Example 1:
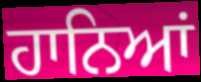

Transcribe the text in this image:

ਹਾਨਿਆਂ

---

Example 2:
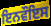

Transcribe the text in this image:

ਇਨਵੌਇਸ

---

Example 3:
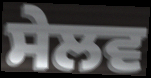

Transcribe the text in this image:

ਸੇਲਵ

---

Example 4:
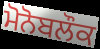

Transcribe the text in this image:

ਮੋਨੋਬਲੌਕ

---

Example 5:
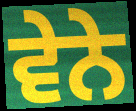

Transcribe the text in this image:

ਵੇਨੇ